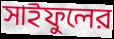
সাইফুলের